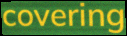
covering